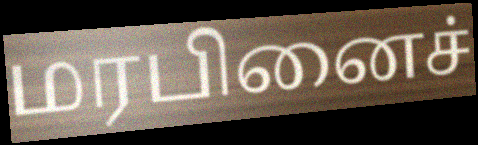
மரபினைச்